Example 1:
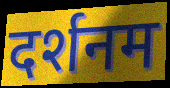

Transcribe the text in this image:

दर्शनम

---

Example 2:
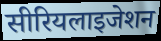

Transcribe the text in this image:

सीरियलाइजेशन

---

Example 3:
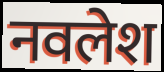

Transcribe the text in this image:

नवलेश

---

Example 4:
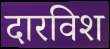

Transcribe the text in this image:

दारविश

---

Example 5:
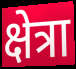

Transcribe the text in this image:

क्षेत्रा